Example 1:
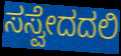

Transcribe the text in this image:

ಸಸ್ವೇದದಲಿ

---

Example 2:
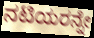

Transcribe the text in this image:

ನಟಿಯರನ್ನೇ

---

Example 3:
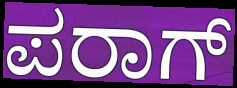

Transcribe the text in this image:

ಪರಾಗ್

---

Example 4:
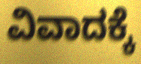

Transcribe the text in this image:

ವಿವಾದಕ್ಕೆ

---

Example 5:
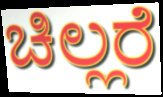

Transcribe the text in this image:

ಚಿಲ್ಲರೆ